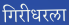
गिरीधरला